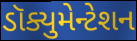
ડૉક્યુમેન્ટેશન